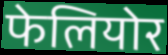
फेलियोर